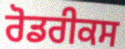
ਰੋਡਰੀਕਸ